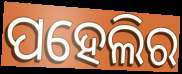
ପହେଲିର